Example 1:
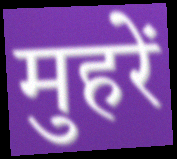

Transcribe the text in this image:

मुहरें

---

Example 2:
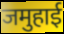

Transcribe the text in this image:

जमुहाई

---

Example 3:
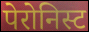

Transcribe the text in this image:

पेरोनिस्ट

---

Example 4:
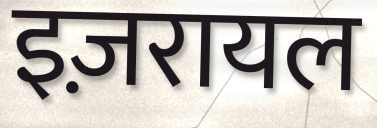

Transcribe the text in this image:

इज़रायल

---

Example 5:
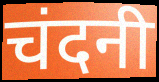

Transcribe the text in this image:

चंदनी